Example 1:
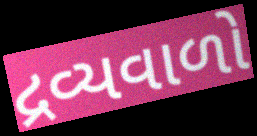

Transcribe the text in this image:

દ્રવ્યવાળો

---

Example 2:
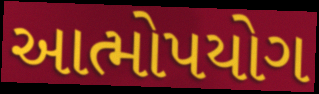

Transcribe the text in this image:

આત્મોપયોગ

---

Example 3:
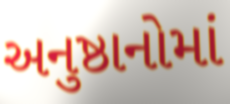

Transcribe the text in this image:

અનુષ્ઠાનોમાં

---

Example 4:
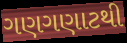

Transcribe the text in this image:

ગણગણાટથી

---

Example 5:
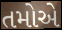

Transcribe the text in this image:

તમોએ